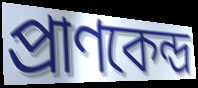
প্ৰাণকেন্দ্ৰ